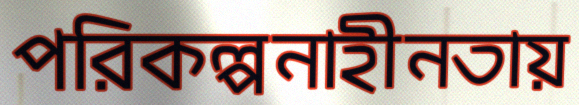
পরিকল্পনাহীনতায়